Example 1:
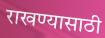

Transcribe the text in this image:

राखण्यासाठी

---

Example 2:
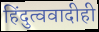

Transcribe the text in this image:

हिंदुत्ववादीही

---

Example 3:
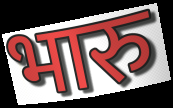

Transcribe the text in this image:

भारु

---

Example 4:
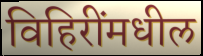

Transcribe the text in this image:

विहिरींमधील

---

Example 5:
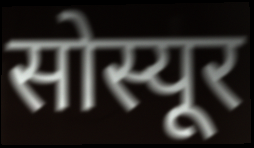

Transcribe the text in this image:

सोस्यूर